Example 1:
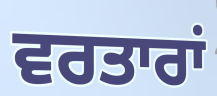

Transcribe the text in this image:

ਵਰਤਾਰਾਂ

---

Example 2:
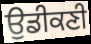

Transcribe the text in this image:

ਉਡੀਕਣੀ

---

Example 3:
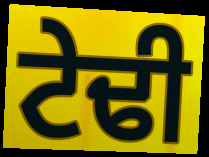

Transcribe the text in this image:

ਟੇਢੀ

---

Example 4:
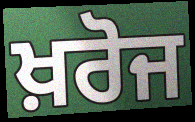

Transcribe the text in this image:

ਖ਼ਰੋਜ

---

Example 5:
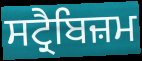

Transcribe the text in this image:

ਸਟ੍ਰੈਬਿਜ਼ਮ